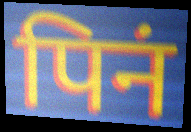
पिनं